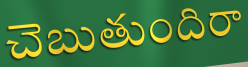
చెబుతుందిరా